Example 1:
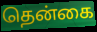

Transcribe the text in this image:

தென்கை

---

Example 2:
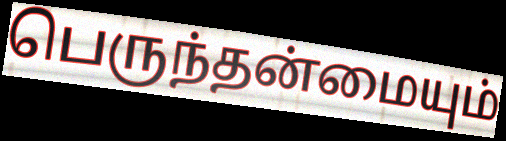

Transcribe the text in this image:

பெருந்தன்மையும்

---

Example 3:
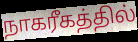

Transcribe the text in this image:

நாகரீகத்தில்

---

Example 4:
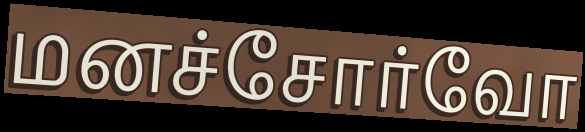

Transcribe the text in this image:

மனச்சோர்வோ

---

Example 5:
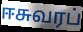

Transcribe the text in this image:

ஈசுவரப்